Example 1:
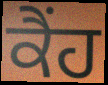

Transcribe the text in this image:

ਕੈਂਹ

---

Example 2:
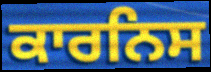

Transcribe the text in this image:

ਕਾਰਨਿਸ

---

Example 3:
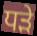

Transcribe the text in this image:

ਧੜੇ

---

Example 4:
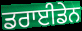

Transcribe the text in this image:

ਡਰਾਈਡੇਨ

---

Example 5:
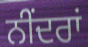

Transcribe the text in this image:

ਨੀਂਦਰਾਂ